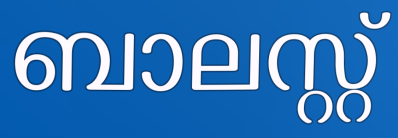
ബാലസ്റ്റ്